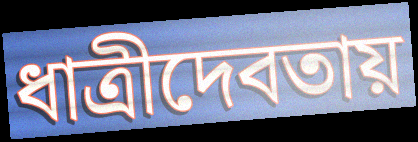
ধাত্রীদেবতায়